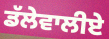
ਡੱਲੇਵਾਲੀਏ